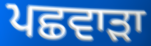
ਪਛਵਾੜਾ